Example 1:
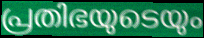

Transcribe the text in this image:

പ്രതിഭയുടെയും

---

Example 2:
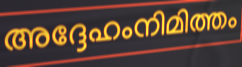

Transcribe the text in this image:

അദ്ദേഹംനിമിത്തം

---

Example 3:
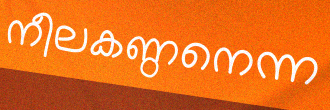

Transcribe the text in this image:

നീലകണ്ഠനെന്ന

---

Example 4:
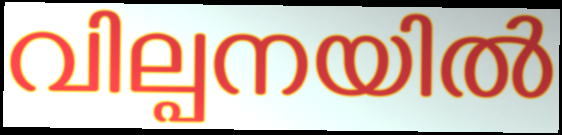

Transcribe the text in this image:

വില്പനയിൽ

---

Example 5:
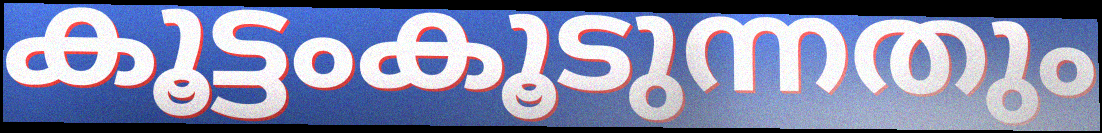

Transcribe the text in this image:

കൂട്ടംകൂടുന്നതും